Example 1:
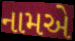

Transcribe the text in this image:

નામએ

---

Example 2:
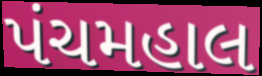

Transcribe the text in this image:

પંચમહાલ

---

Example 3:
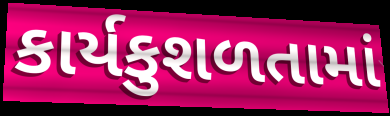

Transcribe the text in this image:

કાર્યકુશળતામાં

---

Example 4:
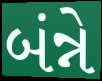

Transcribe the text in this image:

બંન્ને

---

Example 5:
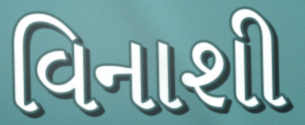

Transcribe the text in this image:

વિનાશી